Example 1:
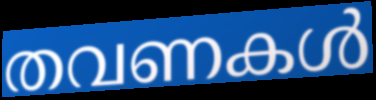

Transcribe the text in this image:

തവണകൾ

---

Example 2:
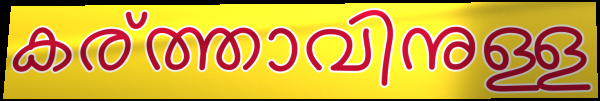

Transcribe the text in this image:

കര്ത്താവിനുള്ള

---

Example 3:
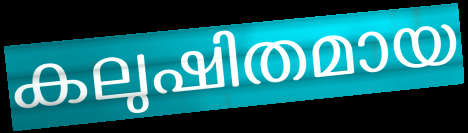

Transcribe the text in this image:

കലുഷിതമായ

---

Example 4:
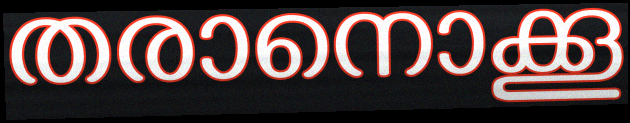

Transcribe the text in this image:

തരാനൊക്കൂ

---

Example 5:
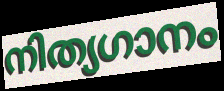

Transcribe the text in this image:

നിത്യഗാനം